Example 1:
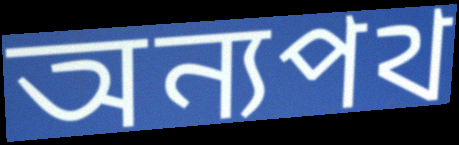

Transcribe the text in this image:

অন্যপথ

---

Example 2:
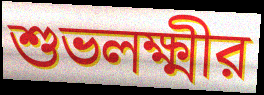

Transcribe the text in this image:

শুভলক্ষ্মীর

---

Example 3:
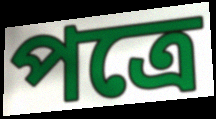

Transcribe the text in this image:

পত্রে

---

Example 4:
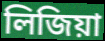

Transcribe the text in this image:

লিজিয়া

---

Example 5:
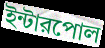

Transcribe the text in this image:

ইন্টারপোল